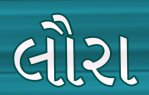
લૌરા